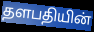
தளபதியின்